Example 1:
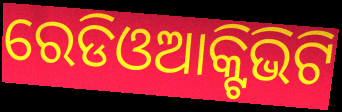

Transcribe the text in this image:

ରେଡିଓଆକ୍ଟିଭିଟି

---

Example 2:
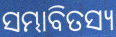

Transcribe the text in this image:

ସମ୍ଭାବିତସ୍ୟ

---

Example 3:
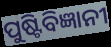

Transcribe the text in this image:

ପୁଷ୍ଟିବିଜ୍ଞାନୀ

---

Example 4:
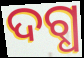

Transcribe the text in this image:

ଦଗ୍ଧ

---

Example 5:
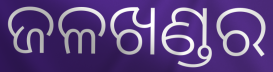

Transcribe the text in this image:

ଜଳଖଣ୍ଡର